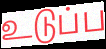
உடுப்ப